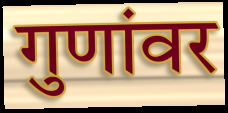
गुणांवर